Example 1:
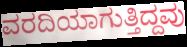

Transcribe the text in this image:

ವರದಿಯಾಗುತ್ತಿದ್ದವು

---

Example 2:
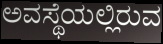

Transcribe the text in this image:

ಅವಸ್ಥೆಯಲ್ಲಿರುವ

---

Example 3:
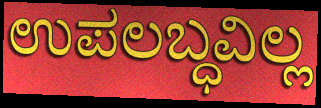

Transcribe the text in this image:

ಉಪಲಬ್ಧವಿಲ್ಲ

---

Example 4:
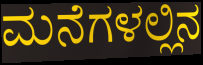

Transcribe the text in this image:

ಮನೆಗಳಲ್ಲಿನ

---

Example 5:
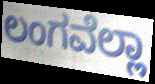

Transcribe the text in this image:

ಲಂಗವೆಲ್ಲಾ